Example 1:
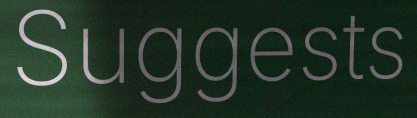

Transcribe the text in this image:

Suggests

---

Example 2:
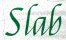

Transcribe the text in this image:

Slab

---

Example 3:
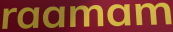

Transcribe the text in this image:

raamam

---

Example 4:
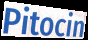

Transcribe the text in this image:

Pitocin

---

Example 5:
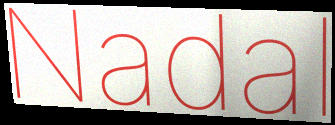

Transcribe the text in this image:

Nadal